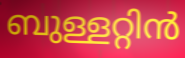
ബുള്ളറ്റിൻ